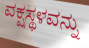
ವಕ್ಷಸ್ಥಳವನ್ನು